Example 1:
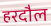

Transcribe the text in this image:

हरदौल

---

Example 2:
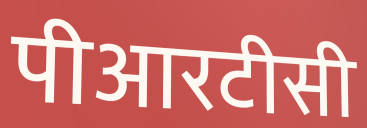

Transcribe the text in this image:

पीआरटीसी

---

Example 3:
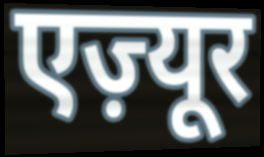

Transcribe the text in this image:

एज़्यूर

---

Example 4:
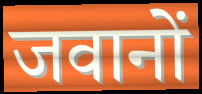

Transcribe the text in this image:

जवानों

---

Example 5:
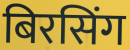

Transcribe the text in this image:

बिरसिंग